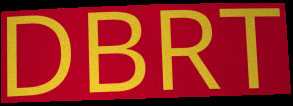
DBRT